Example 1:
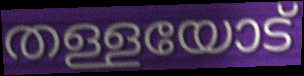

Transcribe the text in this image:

തള്ളയോട്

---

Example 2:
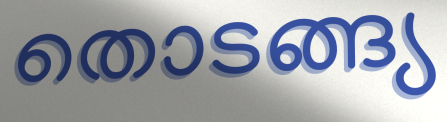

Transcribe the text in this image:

തൊടങ്ങ്യ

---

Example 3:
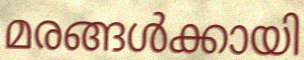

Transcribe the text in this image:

മരങ്ങൾക്കായി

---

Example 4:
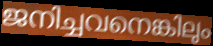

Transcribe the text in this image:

ജനിച്ചവനെങ്കിലും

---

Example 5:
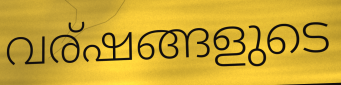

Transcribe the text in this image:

വര്ഷങ്ങളുടെ